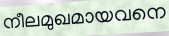
നീലമുഖമായവനെ